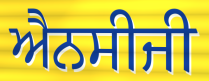
ਐਨਸੀਜੀ